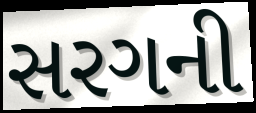
સરગની